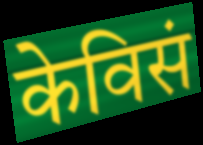
केविसं